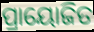
ପ୍ରାୟୋଜିତ